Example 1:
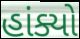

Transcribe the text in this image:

હાંક્યો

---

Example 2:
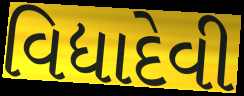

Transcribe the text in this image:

વિદ્યાદેવી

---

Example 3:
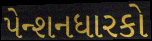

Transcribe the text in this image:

પેન્શનધારકો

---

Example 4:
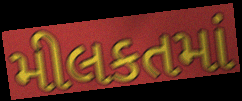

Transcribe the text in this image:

મીલકતમાં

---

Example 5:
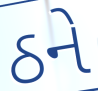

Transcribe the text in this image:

ઠને